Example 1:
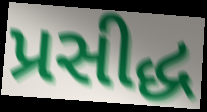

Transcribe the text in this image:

પ્રસીદ્ધ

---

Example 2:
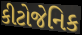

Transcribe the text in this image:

કીટોજેનિક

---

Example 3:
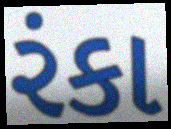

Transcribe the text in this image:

રંકા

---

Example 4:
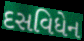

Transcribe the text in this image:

દસવિધેન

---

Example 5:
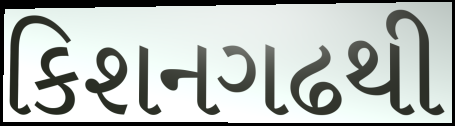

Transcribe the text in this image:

કિશનગઢથી